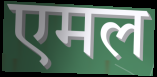
एमल